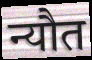
न्यौत